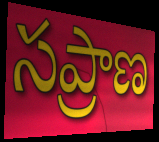
సప్రాణ